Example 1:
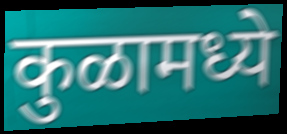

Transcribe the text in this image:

कुळामध्ये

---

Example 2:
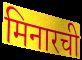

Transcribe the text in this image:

मिनारची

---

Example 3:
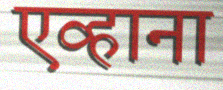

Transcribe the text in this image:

एव्हाना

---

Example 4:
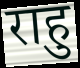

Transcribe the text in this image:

राहु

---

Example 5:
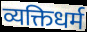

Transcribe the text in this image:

व्यक्तिधर्म